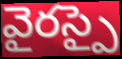
వైరస్పై